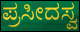
ಪ್ರಸೀದಸ್ವ